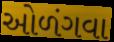
ઓળંગવા